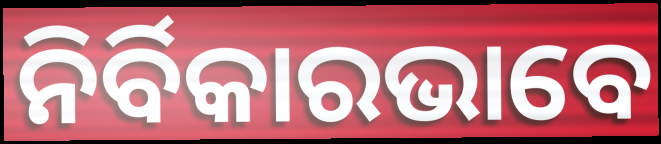
ନିର୍ବିକାରଭାବେ